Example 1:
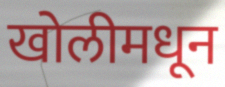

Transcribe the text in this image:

खोलीमधून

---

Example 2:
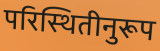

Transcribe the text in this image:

परिस्थितीनुरूप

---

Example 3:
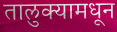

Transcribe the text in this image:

तालुक्यामधून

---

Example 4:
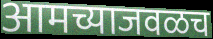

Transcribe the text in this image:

आमच्याजवळच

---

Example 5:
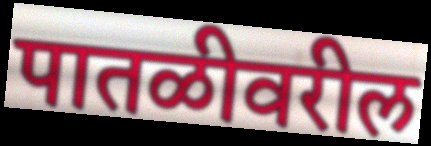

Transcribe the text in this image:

पातळीवरील